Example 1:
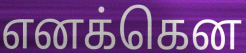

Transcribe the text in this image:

எனக்கென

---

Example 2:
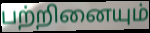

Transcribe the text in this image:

பற்றினையும்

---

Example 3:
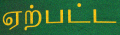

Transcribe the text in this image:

ஏற்பட்ட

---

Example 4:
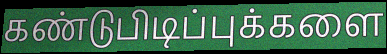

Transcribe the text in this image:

கண்டுபிடிப்புக்களை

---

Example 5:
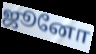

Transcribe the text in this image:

ஜூனோ